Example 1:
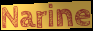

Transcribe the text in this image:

Narine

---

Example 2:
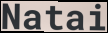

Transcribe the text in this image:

Natai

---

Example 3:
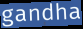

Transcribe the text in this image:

gandha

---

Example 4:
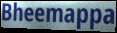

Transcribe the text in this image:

Bheemappa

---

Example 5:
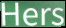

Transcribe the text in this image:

Hers